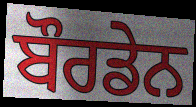
ਬੌਰਡੇਨ